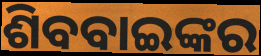
ଶିବବାଇଙ୍କର